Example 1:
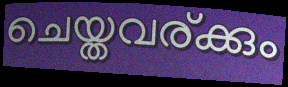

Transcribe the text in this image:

ചെയ്തവര്ക്കും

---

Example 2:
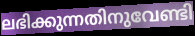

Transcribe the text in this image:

ലഭിക്കുന്നതിനുവേണ്ടി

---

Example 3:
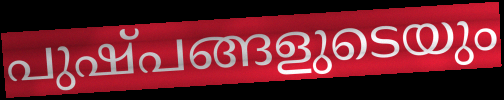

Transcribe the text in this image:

പുഷ്പങ്ങളുടെയും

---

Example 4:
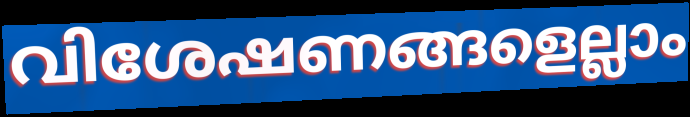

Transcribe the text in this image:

വിശേഷണങ്ങളെല്ലാം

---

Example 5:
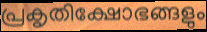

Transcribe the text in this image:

പ്രകൃതിക്ഷോഭങ്ങളും